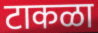
टाकळा